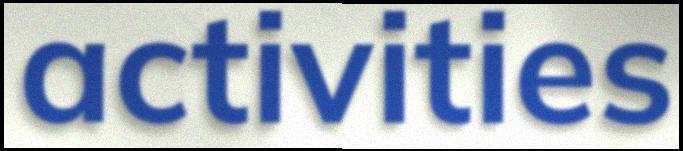
activities